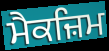
ਮੈਕਜ਼ਿਮ